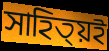
সাহিত্য়ই